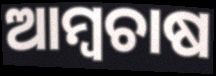
ଆମ୍ୱଚାଷ